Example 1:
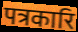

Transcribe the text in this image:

पत्रकारि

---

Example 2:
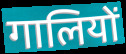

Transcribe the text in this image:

गालियों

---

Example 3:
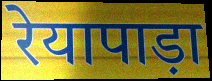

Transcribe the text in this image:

रेयापाड़ा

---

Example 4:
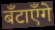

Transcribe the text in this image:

बँटाएँगे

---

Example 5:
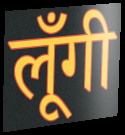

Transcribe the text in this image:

लूँगी